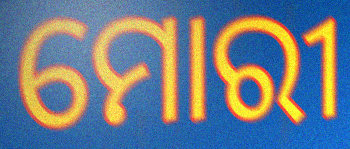
ମୋରୀ